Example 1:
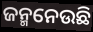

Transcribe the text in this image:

ଜନ୍ମନେଉଛି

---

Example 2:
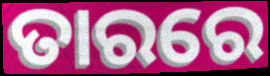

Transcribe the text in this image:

ତାରରେ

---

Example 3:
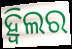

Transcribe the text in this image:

ହ୍ୱିଲର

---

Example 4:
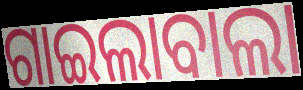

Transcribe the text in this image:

ଗାଇଲାବାଲା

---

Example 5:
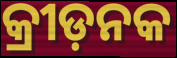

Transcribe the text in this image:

କ୍ରୀଡ଼ନକ